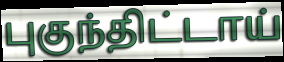
புகுந்திட்டாய்